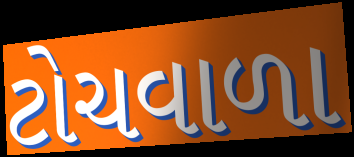
ટોચવાળા